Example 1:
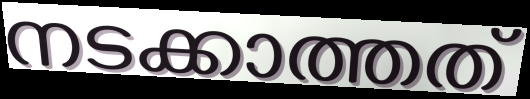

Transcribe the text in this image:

നടക്കാത്തത്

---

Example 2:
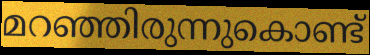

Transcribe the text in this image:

മറഞ്ഞിരുന്നുകൊണ്ട്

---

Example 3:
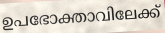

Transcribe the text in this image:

ഉപഭോക്താവിലേക്ക്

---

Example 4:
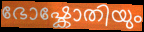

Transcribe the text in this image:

ഭോഷ്കോതിയും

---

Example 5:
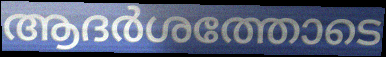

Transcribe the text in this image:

ആദർശത്തോടെ